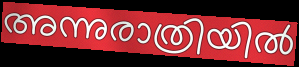
അന്നുരാത്രിയിൽ